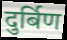
दुर्बिण